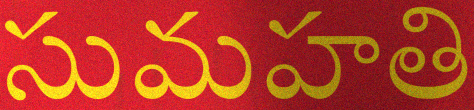
సుమహతి